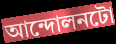
আন্দোলনটো